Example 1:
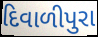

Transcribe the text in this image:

દિવાળીપુરા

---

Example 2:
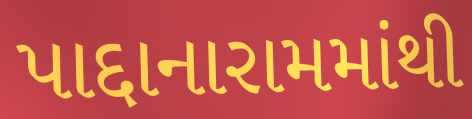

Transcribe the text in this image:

પાદ્દાનારામમાંથી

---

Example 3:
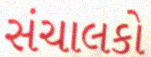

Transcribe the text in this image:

સંચાલકો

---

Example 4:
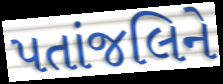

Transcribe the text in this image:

પતાંજલિને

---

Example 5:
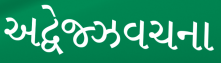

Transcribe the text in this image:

અદ્વેજ્ઝવચના